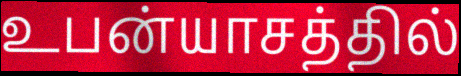
உபன்யாசத்தில்